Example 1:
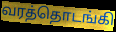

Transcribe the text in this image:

வரத்தொடங்கி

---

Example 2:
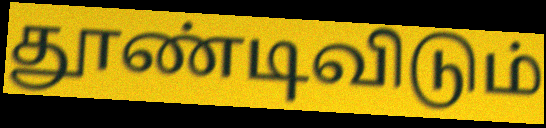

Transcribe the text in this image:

தூண்டிவிடும்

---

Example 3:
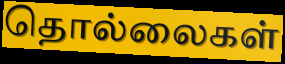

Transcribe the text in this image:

தொல்லைகள்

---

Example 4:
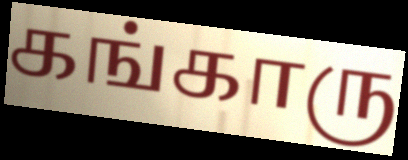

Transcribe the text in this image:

கங்காரு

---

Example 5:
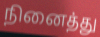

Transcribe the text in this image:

நினைத்து